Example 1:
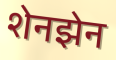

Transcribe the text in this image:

शेनझेन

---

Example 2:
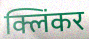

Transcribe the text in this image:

क्लिंकर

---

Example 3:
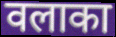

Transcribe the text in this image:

वलाका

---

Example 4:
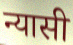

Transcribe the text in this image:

न्यासी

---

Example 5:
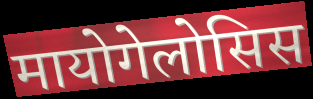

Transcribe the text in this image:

मायोगेलोसिस